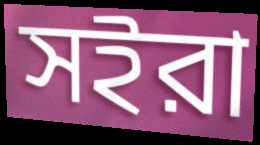
সইরা